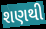
શણથી